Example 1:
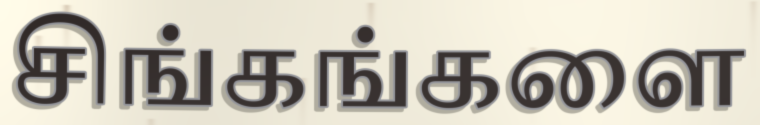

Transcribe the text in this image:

சிங்கங்களை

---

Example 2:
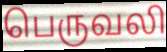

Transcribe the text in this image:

பெருவலி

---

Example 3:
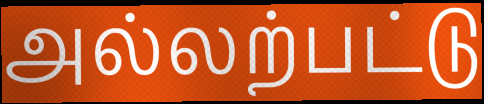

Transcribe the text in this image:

அல்லற்பட்டு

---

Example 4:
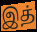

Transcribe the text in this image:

இத்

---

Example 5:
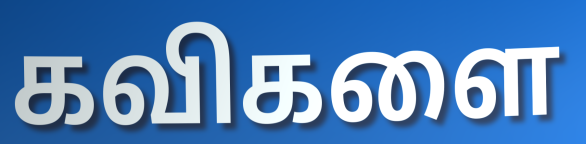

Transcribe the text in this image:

கவிகளை